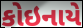
કોઇનાયે